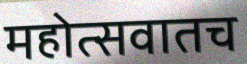
महोत्सवातच